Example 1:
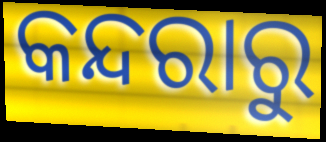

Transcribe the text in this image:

କନ୍ଦରାରୁ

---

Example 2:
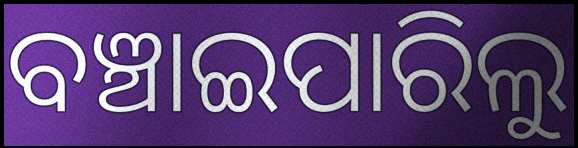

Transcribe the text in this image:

ବଞ୍ଚାଇପାରିଲୁ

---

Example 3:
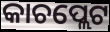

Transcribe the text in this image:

କାଚପ୍ଲେଟ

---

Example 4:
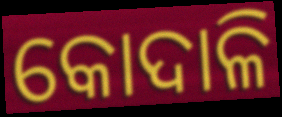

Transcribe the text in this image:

କୋଦାଳି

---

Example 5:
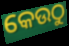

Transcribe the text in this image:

କେଉଠୁ